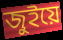
জুইয়ে